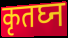
कृतघ्न